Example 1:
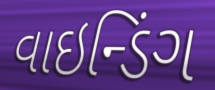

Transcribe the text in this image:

વાઇન્ડિંગ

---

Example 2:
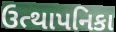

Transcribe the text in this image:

ઉત્થાપનિકા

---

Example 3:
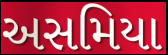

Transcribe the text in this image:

અસમિયા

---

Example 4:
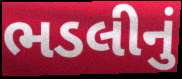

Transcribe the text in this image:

ભડલીનું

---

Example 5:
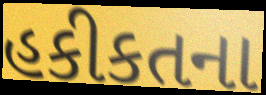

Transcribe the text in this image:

હકીકતના